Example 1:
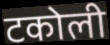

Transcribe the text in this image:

टकोली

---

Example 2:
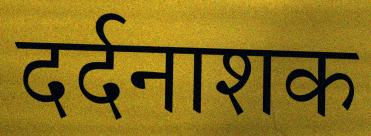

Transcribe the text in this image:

दर्दनाशक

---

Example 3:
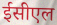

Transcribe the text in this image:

ईसीएल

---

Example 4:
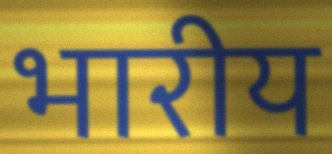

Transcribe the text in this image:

भारीय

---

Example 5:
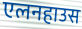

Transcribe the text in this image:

एलनहाउस